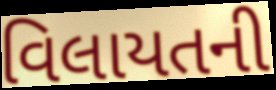
વિલાયતની